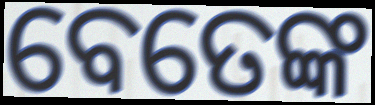
ବେତେଙ୍କ